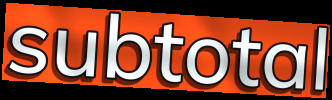
subtotal